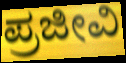
ಪ್ರಜೀವಿ